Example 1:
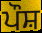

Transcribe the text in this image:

ਪੌਸ਼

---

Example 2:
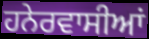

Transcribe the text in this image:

ਹਨੇਰਵਾਸੀਆਂ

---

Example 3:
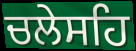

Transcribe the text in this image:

ਚਲੇਸਹਿ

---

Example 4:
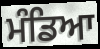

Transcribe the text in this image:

ਮੰਡਿਆ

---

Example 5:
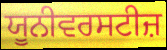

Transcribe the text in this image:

ਯੂਨੀਵਰਸਟੀਜ਼